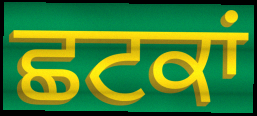
ਛਟਕਾਂ